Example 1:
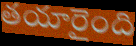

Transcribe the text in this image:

తయారైంది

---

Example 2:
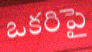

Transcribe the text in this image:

ఒకరిపై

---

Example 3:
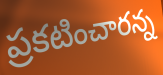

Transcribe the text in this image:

ప్రకటించారన్న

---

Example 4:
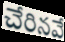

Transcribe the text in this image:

చేరినవే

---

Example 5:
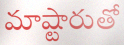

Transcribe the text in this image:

మాష్టారుతో